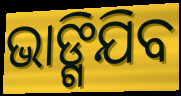
ଭାଙ୍ଗିଯିବ